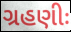
ગ્રહણીઃ